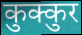
कुक्कुर